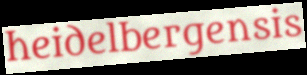
heidelbergensis